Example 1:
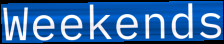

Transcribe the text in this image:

Weekends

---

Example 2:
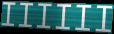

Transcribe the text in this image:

IIIIII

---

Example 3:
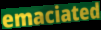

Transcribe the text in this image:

emaciated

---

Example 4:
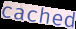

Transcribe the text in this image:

cached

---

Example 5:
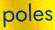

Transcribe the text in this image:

poles